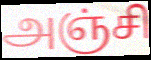
அஞ்சி